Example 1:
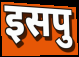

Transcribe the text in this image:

इसपु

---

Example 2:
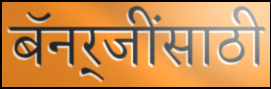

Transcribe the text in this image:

बॅनर्जींसाठी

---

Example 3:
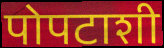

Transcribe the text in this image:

पोपटाशी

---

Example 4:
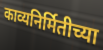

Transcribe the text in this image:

काव्यनिर्मितीच्या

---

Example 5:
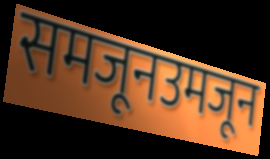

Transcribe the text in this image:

समजूनउमजून